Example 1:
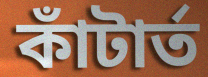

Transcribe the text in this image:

কাঁটার্ত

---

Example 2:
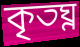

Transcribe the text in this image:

কৃতঘ্ন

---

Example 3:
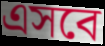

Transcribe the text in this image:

এসবে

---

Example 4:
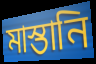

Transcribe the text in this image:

মাস্তানি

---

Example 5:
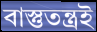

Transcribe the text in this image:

বাস্তুতন্ত্রই